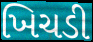
ખિચડી